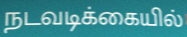
நடவடிக்கையில்